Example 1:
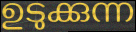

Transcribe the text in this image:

ഉടുക്കുന്ന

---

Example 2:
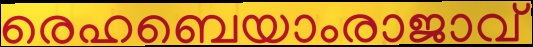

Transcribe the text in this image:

രെഹബെയാംരാജാവ്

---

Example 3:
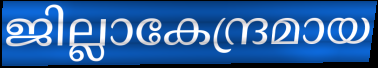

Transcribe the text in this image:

ജില്ലാകേന്ദ്രമായ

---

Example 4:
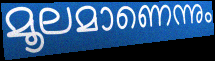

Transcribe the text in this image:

മൂലമാണെന്നും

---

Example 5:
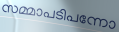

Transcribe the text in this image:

സമ്മാപടിപന്നോ